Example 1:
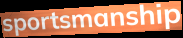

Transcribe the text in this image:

sportsmanship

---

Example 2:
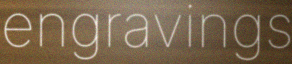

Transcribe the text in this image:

engravings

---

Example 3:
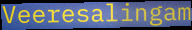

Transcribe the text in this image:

Veeresalingam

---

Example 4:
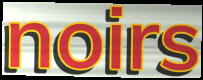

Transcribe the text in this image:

noirs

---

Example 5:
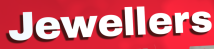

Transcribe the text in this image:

Jewellers